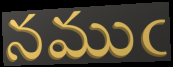
నముఁ